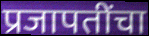
प्रजापतींचा